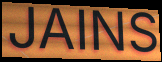
JAINS